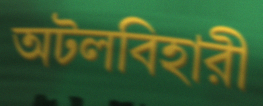
অটলবিহারী